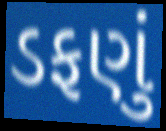
ડફણું